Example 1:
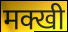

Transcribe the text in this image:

मक्खी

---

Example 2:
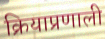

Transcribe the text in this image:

क्रियाप्रणाली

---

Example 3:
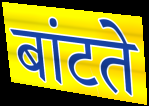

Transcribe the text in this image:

बांटते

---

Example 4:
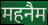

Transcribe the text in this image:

महनैम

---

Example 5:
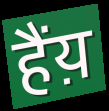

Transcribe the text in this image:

हैंय़